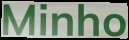
Minho